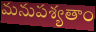
మనుపశ్యతాం